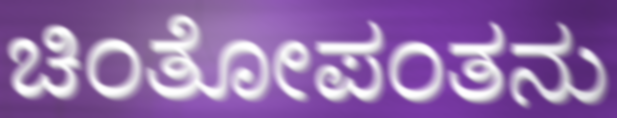
ಚಿಂತೋಪಂತನು